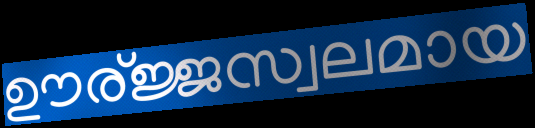
ഊര്ജ്ജസ്വലമായ